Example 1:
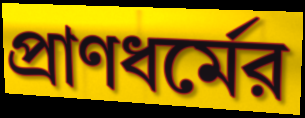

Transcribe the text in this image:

প্রাণধর্মের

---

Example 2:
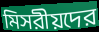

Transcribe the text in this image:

মিসরীয়দের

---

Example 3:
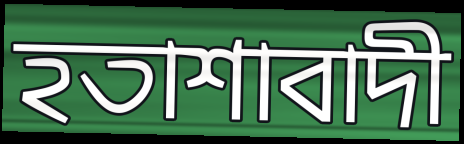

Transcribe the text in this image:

হতাশাবাদী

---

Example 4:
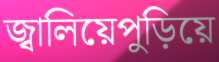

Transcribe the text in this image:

জ্বালিয়েপুড়িয়ে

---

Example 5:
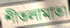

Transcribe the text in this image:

শীতলামাতা